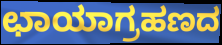
ಛಾಯಾಗ್ರಹಣದ